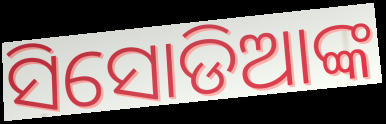
ସିସୋଡିଆଙ୍କ